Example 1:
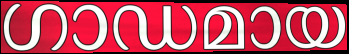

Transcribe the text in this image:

ഗാഡമായ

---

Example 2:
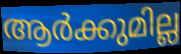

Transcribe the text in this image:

ആർക്കുമില്ല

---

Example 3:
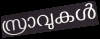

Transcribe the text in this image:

സ്രാവുകൾ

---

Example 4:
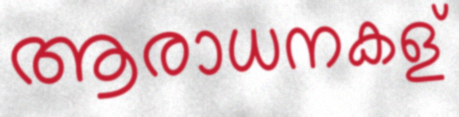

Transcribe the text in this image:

ആരാധനകള്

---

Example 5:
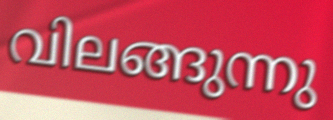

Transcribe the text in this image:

വിലങ്ങുന്നു